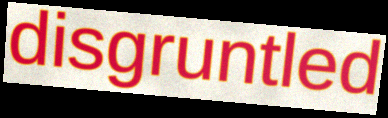
disgruntled